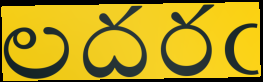
లదరఁ